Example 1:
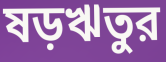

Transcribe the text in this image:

ষড়ঋতুর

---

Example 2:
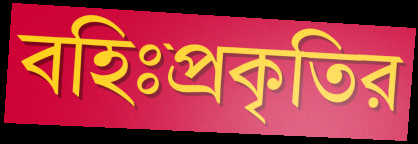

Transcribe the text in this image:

বহিঃপ্রকৃতির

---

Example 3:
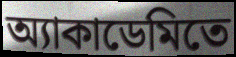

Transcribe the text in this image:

অ্যাকাডেমিতে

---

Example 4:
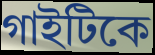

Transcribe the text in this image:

গাইটিকে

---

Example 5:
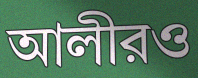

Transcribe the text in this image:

আলীরও